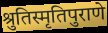
श्रुतिस्मृतिपुराणे